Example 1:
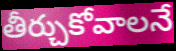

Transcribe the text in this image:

తీర్చుకోవాలనే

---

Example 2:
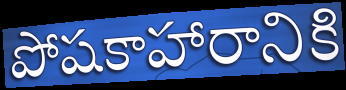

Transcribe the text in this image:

పోషకాహారానికి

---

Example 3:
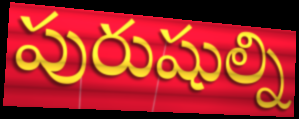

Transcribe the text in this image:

పురుషుల్ని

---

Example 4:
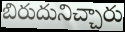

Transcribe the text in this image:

బిరుదునిచ్చారు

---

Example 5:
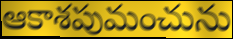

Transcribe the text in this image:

ఆకాశపుమంచును